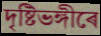
দৃষ্টিভঙ্গীৰে